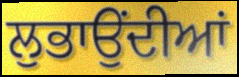
ਲੁਭਾਉਂਦੀਆਂ